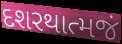
દશરથાત્મજં